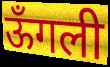
ऊँगली